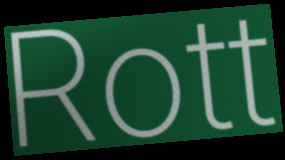
Rott